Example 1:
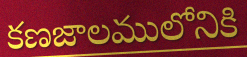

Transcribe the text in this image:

కణజాలములోనికి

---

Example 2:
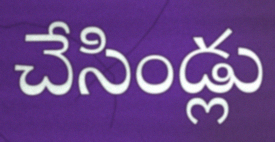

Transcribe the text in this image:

చేసిండ్లు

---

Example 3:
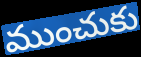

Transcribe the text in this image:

ముంచుకు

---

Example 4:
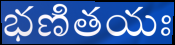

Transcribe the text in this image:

భణితయః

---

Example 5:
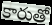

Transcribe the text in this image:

కారుతో